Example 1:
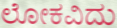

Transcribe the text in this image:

ಲೋಕವಿದು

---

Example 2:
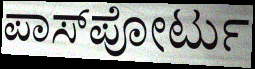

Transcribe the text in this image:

ಪಾಸ್‌ಪೋರ್ಟು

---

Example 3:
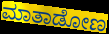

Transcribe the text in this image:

ಮಾತಾಡೋಣ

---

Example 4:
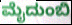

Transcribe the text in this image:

ಮೈದುಂಬಿ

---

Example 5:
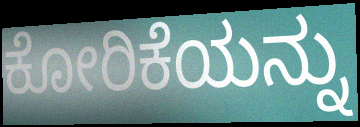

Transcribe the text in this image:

ಕೋರಿಕೆಯನ್ನು